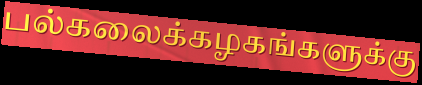
பல்கலைக்கழகங்களுக்கு